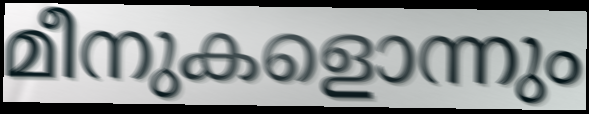
മീനുകളൊന്നും